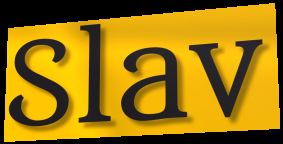
Slav